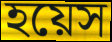
হয়েস